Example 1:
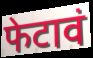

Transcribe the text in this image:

फेटावं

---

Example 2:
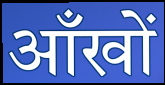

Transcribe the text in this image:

आँखों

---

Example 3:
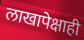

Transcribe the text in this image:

लाखापेक्षाही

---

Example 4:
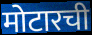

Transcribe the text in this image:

मोटारची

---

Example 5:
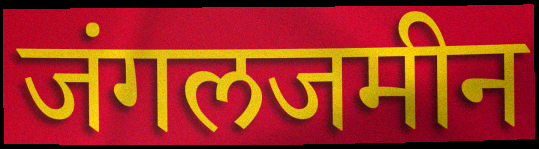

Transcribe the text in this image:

जंगलजमीन